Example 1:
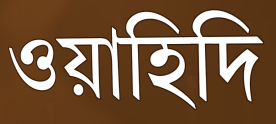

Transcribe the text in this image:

ওয়াহিদি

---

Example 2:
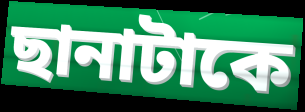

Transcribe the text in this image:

ছানাটাকে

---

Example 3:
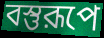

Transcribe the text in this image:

বস্তুরূপে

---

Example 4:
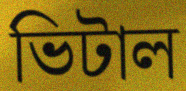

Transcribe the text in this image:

ভিটাল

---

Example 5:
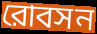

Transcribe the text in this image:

রোবসন